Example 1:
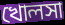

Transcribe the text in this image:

খোলসা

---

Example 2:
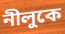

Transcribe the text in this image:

নীলুকে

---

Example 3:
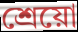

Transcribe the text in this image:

শ্রেয়ো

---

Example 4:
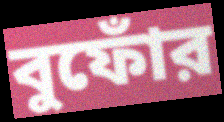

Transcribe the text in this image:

বুফোঁর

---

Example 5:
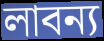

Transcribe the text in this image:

লাবন্য